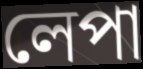
লেপা